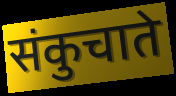
संकुचाते